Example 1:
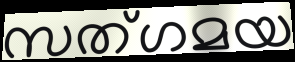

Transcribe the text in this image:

സത്ഗമയ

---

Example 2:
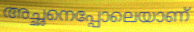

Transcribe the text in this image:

അച്ഛനെപ്പോലെയാണ്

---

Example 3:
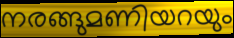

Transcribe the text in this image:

നരങ്ങുമണിയറയും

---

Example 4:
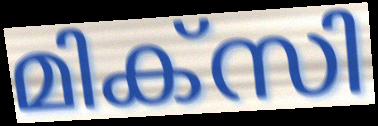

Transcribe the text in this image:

മിക്‌സി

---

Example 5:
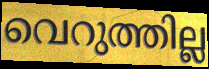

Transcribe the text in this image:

വെറുത്തില്ല